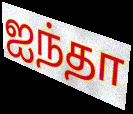
ஐந்தா